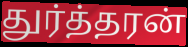
துர்த்தரன்